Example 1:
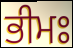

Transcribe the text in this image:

ਭੀਮਃ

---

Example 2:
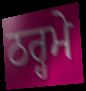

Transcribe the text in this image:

ਠਰ੍ਹਮੇ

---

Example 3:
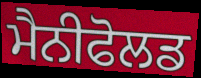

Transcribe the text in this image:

ਮੈਨੀਫੋਲਡ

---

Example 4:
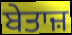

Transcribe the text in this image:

ਬੇਤਾਜ਼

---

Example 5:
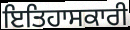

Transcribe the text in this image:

ਇਤਿਹਾਸਕਾਰੀ